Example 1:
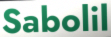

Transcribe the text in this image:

Sabolil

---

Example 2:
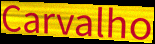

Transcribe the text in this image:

Carvalho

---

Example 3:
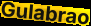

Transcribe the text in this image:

Gulabrao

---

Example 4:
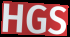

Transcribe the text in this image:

HGS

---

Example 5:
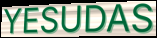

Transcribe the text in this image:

YESUDAS